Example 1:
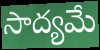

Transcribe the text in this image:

సాద్యమే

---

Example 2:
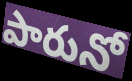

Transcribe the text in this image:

పారునో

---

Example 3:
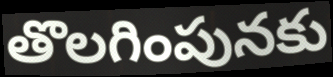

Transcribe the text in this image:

తొలగింపునకు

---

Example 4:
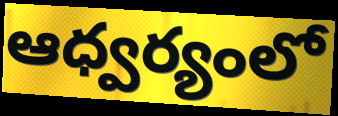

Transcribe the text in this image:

ఆధ్వర్యంలో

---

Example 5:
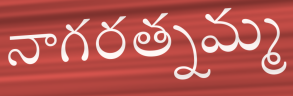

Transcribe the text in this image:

నాగరత్నమ్మ